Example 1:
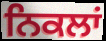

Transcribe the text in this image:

ਨਿਕਲਾਂ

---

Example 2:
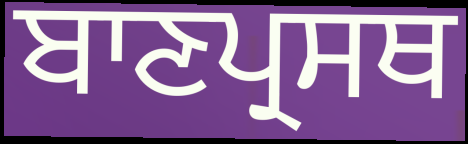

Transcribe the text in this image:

ਬਾਣਪ੍ਰਸਥ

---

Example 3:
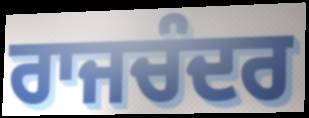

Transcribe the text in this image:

ਰਾਜਚੰਦਰ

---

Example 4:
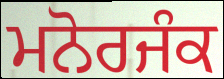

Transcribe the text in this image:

ਮਨੋਰਜੰਕ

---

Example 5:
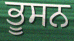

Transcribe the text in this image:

ਭੂਸਨ